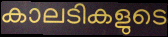
കാലടികളുടെ